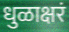
धुळाक्षरं